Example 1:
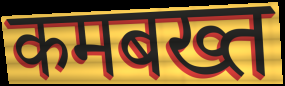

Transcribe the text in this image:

कमबख्त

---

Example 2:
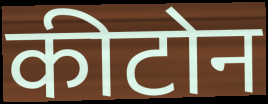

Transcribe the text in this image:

कीटोन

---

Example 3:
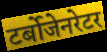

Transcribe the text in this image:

टर्बोजेनरेटर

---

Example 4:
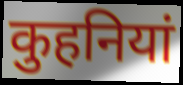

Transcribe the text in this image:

कुहनियां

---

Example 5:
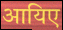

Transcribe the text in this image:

आयिए